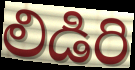
లిడిరి